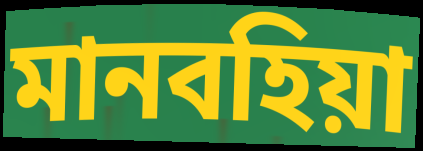
মানবহিয়া